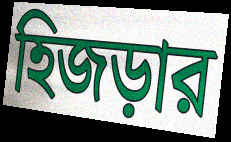
হিজড়ার